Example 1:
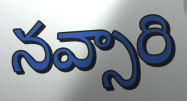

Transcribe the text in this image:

నవ్సారి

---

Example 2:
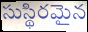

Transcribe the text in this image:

సుస్థిరమైన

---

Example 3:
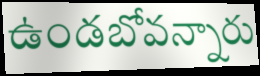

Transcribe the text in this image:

ఉండబోవన్నారు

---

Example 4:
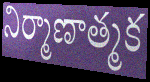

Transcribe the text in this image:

నిర్మాణాత్మక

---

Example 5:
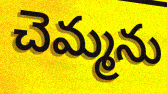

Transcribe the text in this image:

చెమ్మను